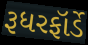
રૂધરફૉર્ડે